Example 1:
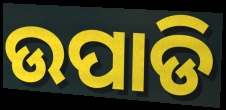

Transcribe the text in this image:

ଉପାଡି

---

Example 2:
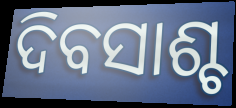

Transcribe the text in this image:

ଦିବସାଶ୍ଚ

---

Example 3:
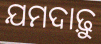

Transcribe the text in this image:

ଯମଦାଢ଼ୁ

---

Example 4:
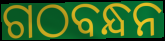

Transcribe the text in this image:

ଗଠବନ୍ଧନ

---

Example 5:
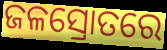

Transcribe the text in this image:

ଜଳସ୍ରୋତରେ